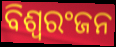
ବିଶ୍ୱରଂଜନ